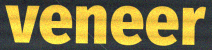
veneer